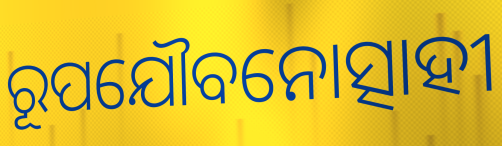
ରୂପଯୌବନୋତ୍ସାହୀ